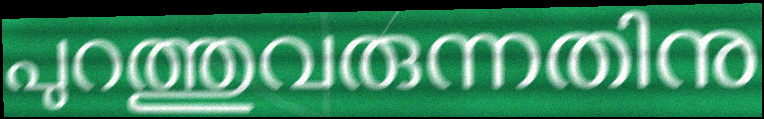
പുറത്തുവരുന്നതിനു